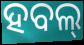
ହବଲ୍